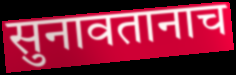
सुनावतानाच